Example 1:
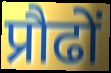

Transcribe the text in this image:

प्रौढों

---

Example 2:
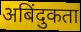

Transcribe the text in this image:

अबिंदुकता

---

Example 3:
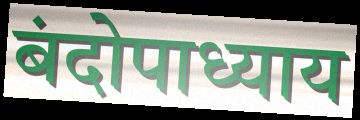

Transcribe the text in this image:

बंदोपाध्‍याय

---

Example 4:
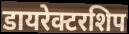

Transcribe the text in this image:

डायरेक्टरशिप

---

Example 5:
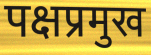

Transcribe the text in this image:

पक्षप्रमुख